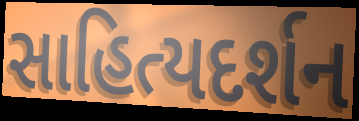
સાહિત્યદર્શન